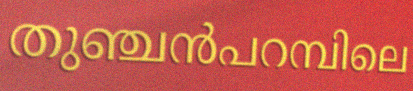
തുഞ്ചൻപറമ്പിലെ